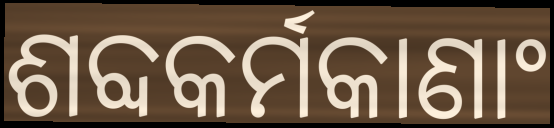
ଶବ୍ଦକର୍ମକାଣାଂ